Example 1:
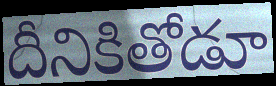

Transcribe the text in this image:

దీనికితోడూ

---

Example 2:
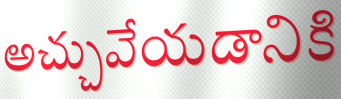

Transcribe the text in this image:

అచ్చువేయడానికి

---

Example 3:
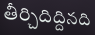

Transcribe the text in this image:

తీర్చిదిద్దినది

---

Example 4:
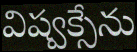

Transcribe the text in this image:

విష్వక్సేను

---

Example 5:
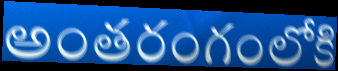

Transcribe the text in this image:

అంతరంగంలోకి